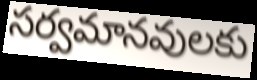
సర్వమానవులకు